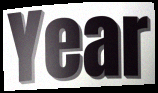
Year